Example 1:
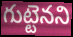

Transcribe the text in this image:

గుట్టెనని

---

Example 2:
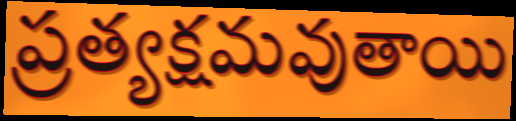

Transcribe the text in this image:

ప్రత్యక్షమవుతాయి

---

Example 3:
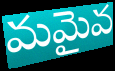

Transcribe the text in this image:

మమైవ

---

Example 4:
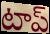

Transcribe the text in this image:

టాప్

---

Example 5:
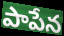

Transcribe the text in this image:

పాపేన